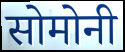
सोमोनी